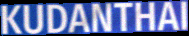
KUDANTHAI